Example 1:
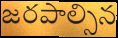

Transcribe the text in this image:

జరపాల్సిన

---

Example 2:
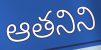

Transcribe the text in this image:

ఆతనిని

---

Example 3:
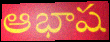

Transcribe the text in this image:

ఆభాష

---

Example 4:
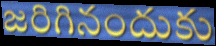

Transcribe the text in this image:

జరిగినందుకు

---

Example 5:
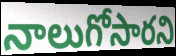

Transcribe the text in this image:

నాలుగోసారని